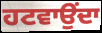
ਹਟਵਾਉਂਦਾ